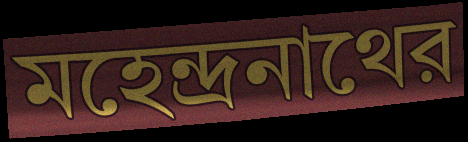
মহেন্দ্রনাথের